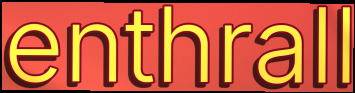
enthrall